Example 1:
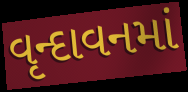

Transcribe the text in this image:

વૃન્દાવનમાં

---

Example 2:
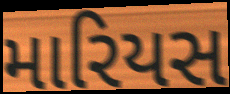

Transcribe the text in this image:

મારિયસ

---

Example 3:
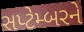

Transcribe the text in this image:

સપ્ટેમ્બરને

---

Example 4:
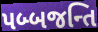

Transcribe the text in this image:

પબ્બજન્તિ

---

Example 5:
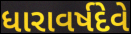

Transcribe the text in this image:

ધારાવર્ષદેવે